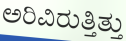
ಅರಿವಿರುತ್ತಿತ್ತು